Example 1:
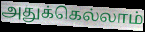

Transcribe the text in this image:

அதுக்கெல்லாம்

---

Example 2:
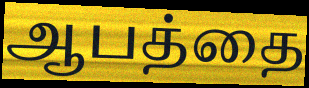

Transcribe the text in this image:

ஆபத்தை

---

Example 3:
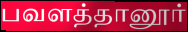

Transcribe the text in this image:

பவளத்தானூர்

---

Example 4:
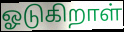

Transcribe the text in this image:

ஓடுகிறாள்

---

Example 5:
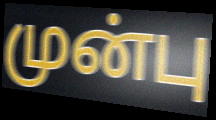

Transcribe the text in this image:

முன்பு